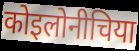
कोइलोनीचिया